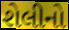
શેલીનો